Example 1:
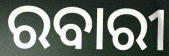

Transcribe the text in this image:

ରବାରୀ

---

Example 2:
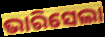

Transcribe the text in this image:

ଭାରିସେଲା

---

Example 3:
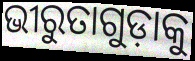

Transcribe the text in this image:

ଭୀରୁତାଗୁଡ଼ାକୁ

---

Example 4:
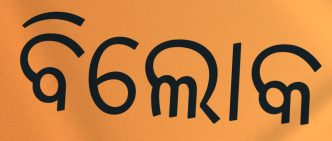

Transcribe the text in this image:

ବିଲୋକ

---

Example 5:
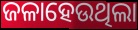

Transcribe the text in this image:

ଜଳାହେଉଥିଲା